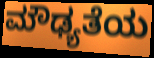
ಮೌಢ್ಯತೆಯ